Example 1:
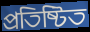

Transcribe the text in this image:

প্রতিষ্টিত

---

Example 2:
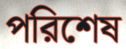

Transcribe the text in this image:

পরিশেষ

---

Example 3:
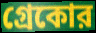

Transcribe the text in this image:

গ্রেকোর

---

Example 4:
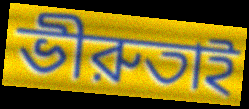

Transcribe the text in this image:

ভীরুতাই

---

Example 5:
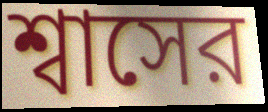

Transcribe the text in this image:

শ্বাসের